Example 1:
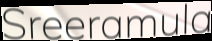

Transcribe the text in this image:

Sreeramula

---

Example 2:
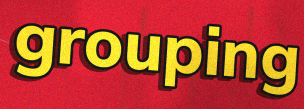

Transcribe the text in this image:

grouping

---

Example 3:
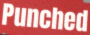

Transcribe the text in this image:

Punched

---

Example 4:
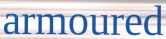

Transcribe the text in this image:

armoured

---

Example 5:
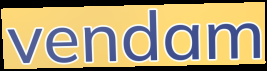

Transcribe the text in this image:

vendam